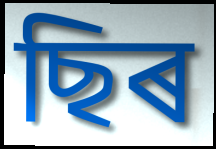
ছিৰ